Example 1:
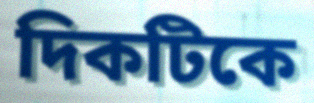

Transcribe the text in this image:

দিকটিকে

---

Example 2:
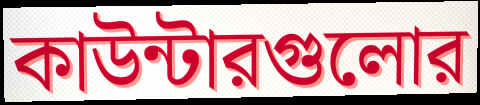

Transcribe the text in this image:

কাউন্টারগুলোর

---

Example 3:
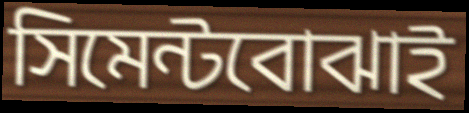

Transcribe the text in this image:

সিমেন্টবোঝাই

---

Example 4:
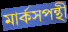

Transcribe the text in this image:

মার্কসপন্থী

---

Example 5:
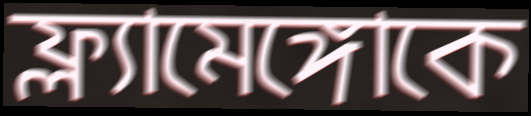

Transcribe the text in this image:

ফ্ল্যামেঙ্গোকে